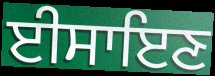
ਈਸਾਇਣ